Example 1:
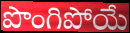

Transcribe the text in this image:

పొంగిపోయే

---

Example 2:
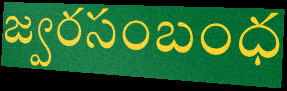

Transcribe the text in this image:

జ్వరసంబంధ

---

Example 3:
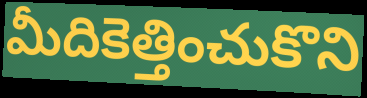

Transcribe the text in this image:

మీదికెత్తించుకొని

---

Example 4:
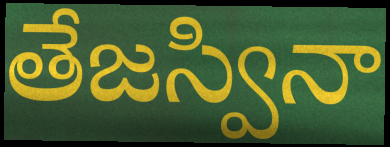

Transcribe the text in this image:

తేజస్వినా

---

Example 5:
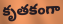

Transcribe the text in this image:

కృతకంగా